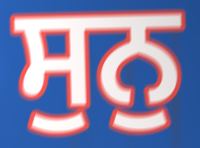
ਸੁਨੁ